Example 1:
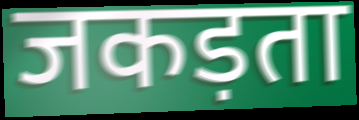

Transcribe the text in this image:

जकड़ता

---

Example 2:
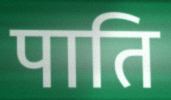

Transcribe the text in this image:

पाति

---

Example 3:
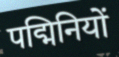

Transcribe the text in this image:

पद्मिनियों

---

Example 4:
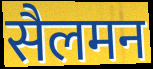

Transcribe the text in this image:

सैलमन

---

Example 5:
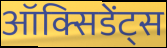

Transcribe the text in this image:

ऑक्सिडेंट्स